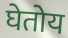
घेतोय